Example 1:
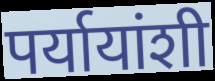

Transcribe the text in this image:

पर्यायांशी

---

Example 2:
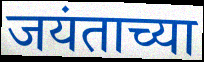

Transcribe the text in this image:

जयंताच्या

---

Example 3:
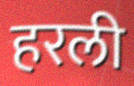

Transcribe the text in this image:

हरली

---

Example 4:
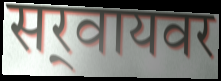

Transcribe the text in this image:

सर्वायवर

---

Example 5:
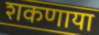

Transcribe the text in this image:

शकणाया